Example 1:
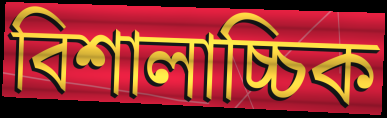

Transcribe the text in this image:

বিশালাচ্চিক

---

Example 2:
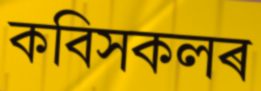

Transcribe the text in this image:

কবিসকলৰ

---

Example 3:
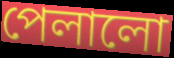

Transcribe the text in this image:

পেলালো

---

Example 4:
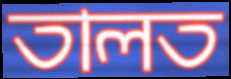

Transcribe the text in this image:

তালত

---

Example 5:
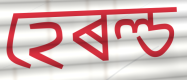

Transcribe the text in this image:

হেৰল্ড